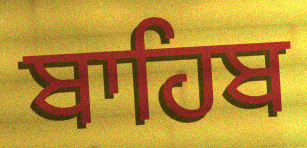
ਬਾਹਿਬ